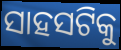
ସାହସଟିକୁ